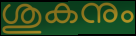
ശുകനും